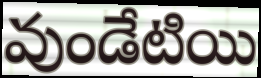
వుండేటియి